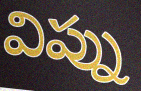
విప్ను